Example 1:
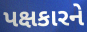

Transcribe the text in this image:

પક્ષકારને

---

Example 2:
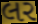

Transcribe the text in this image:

લર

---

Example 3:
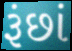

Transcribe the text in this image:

રૂંછાં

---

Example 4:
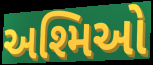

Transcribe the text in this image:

અશ્મિઓ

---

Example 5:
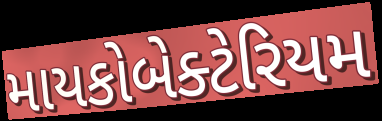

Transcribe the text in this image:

માયકોબેક્ટેરિયમ